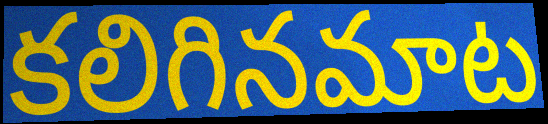
కలిగినమాట